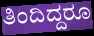
ತಿಂದಿದ್ದರೂ